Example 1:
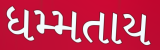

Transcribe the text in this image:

ધમ્મતાય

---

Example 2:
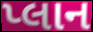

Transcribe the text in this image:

પ્લાન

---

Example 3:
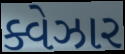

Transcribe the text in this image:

ક્વેઝાર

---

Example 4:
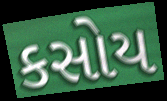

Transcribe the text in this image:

કસોય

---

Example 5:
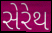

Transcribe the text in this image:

સેરેથ